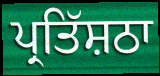
ਪ੍ਰਤਿੱਸ਼ਠਾ